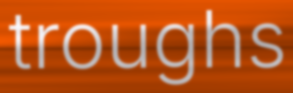
troughs